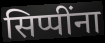
सिप्पींना